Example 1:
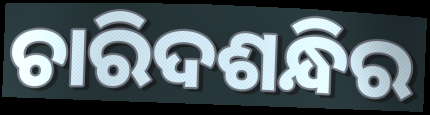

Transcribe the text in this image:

ଚାରିଦଶନ୍ଧିର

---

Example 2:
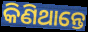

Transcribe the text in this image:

କିଣିଥାନ୍ତେ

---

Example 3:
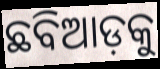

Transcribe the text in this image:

ଛବିଆଡ଼କୁ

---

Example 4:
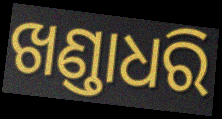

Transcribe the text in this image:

ଖଣ୍ଡାଧରି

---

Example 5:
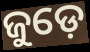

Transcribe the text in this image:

ଜୁଡ଼େ